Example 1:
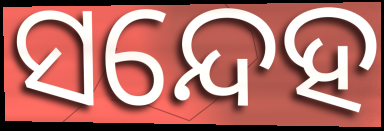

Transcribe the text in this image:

ସନ୍ଦେହ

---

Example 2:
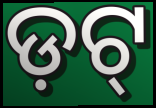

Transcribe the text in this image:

ଡ଼ଟ୍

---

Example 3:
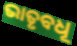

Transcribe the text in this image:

ଭାତୃବଧୂ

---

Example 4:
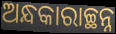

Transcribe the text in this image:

ଅନ୍ଧକାରାଚ୍ଛନ୍ନ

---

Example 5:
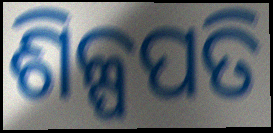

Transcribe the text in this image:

ଶିଳ୍ପପତି